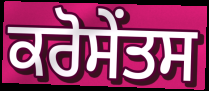
ਕਰੋਸੇਂਤਸ